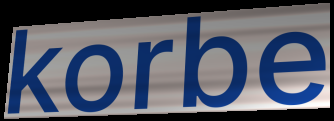
korbe